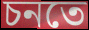
চনতে